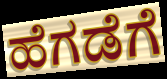
ಹೆಗಡೆಗೆ